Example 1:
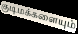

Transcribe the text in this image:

குடிமக்களையும்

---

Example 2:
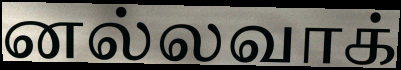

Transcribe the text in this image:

னல்லவாக்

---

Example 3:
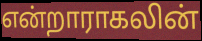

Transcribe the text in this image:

என்றாராகலின்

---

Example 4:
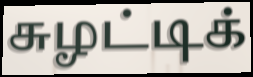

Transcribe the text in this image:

சுழட்டிக்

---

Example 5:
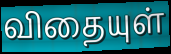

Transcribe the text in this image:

விதையுள்